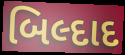
બિલ્દાદ